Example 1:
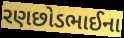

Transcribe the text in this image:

રણછોડભાઈના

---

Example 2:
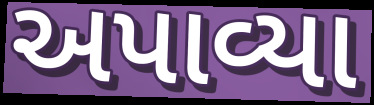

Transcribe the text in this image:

અપાવ્યા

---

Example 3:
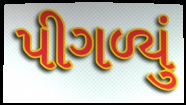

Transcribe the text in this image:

પીગળ્યું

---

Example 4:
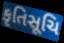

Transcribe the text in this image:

કૃતિસૂચિ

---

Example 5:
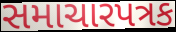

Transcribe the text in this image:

સમાચારપત્રક